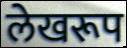
लेखरूप